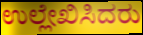
ಉಲ್ಲೇಖಿಸಿದರು